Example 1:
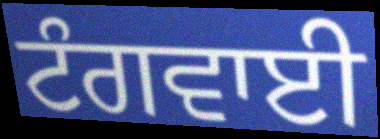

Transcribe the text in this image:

ਟੰਗਵਾਈ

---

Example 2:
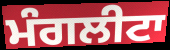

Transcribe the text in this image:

ਮੰਗਲੀਟਾ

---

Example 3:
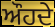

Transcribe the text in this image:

ਔਹਦੇ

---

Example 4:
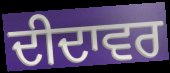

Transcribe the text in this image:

ਦੀਦਾਵਰ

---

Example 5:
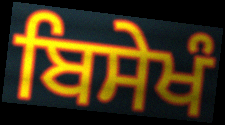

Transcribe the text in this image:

ਬਿਸੇਖੰ